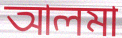
আলমা